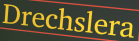
Drechslera